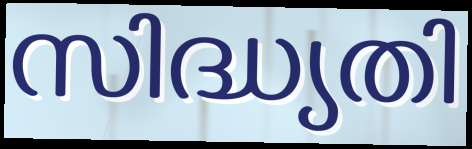
സിദ്ധ്യതി